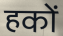
हकों